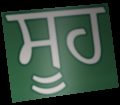
ਸੂਹ